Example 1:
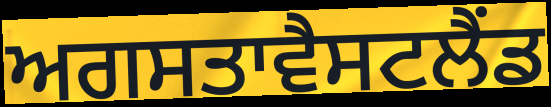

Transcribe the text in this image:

ਅਗਸਤਾਵੈਸਟਲੈਂਡ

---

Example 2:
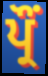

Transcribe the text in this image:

ਪ੍ਰੌਂ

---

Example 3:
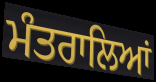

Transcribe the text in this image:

ਮੰਤਰਾਲਿਆਂ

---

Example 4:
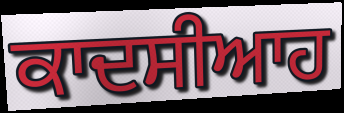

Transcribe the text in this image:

ਕਾਦਸੀਆਹ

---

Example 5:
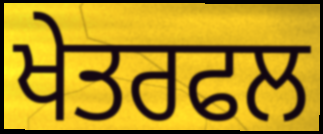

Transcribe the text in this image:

ਖੇਤਰਫਲ